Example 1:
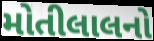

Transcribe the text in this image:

મોતીલાલનો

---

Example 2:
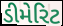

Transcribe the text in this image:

ડીમેરિટ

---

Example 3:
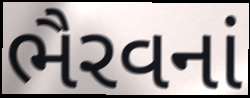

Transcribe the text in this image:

ભૈરવનાં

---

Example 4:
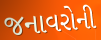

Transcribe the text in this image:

જનાવરોની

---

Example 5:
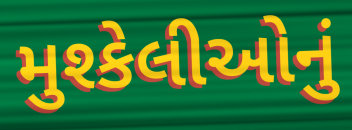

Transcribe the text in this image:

મુશ્કેલીઓનું